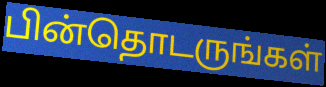
பின்தொடருங்கள்